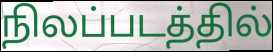
நிலப்படத்தில்